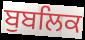
ਬੁਬਲਿਕ